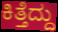
ಕಿತ್ತೆದ್ದು